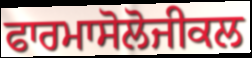
ਫਾਰਮਾਸੋਲੋਜੀਕਲ